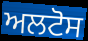
ਅਲਟੋਸ